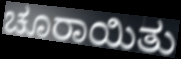
ಚೂರಾಯಿತು